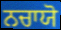
ਨਚਾਯੋ